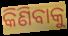
କିଣିବାକୁ